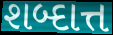
શબ્દાત્ત